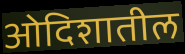
ओदिशातील